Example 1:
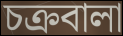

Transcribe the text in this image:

চক্রবালা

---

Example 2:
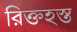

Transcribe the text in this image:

রিক্তহস্ত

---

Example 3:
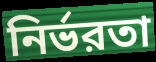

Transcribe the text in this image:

নির্ভরতা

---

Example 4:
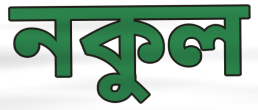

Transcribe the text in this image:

নকুল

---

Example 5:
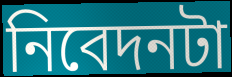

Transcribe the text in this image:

নিবেদনটা